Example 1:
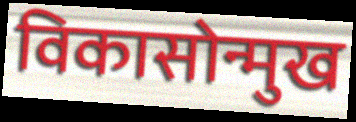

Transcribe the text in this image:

विकासोन्मुख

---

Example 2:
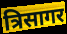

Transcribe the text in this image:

त्रिसागर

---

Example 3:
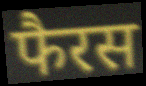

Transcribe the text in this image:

फैरस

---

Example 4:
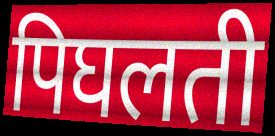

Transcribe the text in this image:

पिघलती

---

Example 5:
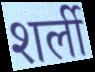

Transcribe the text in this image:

शर्ली